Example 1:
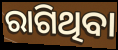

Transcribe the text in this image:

ରାଗିଥିବା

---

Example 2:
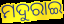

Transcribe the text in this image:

ମଦୁରାଇ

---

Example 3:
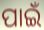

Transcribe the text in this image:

ପାଇଁ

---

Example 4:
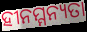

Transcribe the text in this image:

ହୀନମ୍ମନ୍ୟତା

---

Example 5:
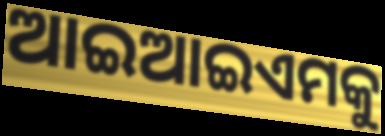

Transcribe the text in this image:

ଆଇଆଇଏମକୁ